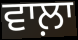
ਵਾਲ਼ਾ